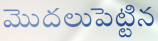
మొదలుపెట్టిన